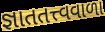
જ્ઞાતતત્ત્વવાળા